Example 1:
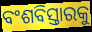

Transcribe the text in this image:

ବଂଶବିସ୍ତାରକୁ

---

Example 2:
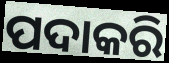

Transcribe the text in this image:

ପଦାକରି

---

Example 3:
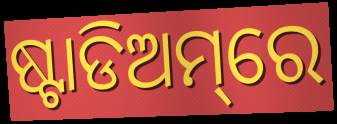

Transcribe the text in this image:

ଷ୍ଟାଡିଅମ୍‌ରେ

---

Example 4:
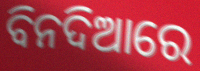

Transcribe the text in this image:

ବିନଦିଆରେ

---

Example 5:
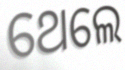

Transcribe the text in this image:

ଥେଲେ